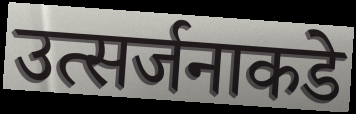
उत्सर्जनाकडे